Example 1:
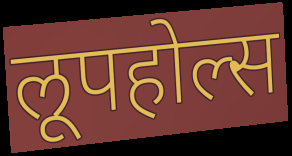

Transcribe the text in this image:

लूपहोल्स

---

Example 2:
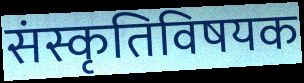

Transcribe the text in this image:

संस्कृतिविषयक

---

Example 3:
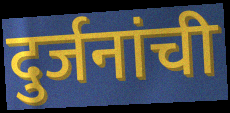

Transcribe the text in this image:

दुर्जनांची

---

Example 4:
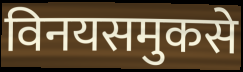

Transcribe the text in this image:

विनयसमुकसे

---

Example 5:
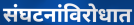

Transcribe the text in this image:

संघटनांविरोधात